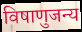
विषाणुजन्य